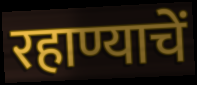
रहाण्याचें